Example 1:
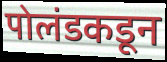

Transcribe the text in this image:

पोलंडकडून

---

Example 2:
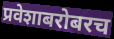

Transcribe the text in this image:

प्रवेशाबरोबरच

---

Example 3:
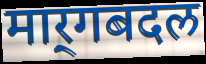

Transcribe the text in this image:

मार्गबदल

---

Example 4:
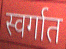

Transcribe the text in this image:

स्वर्गात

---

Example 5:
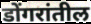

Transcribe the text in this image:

डोंगरांतील